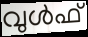
വുൾഫ്